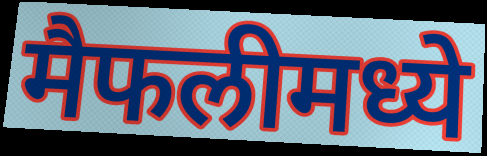
मैफलीमध्ये